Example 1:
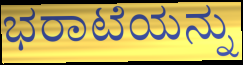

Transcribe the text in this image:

ಭರಾಟೆಯನ್ನು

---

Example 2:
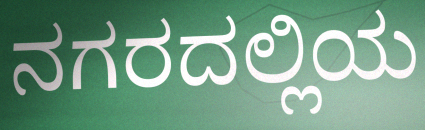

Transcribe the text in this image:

ನಗರದಲ್ಲಿಯ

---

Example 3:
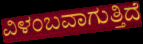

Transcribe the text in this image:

ವಿಳಂಬವಾಗುತ್ತಿದೆ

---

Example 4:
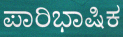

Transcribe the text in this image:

ಪಾರಿಭಾಷಿಕ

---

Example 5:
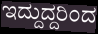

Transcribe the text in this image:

ಇದ್ದುದ್ದರಿಂದ